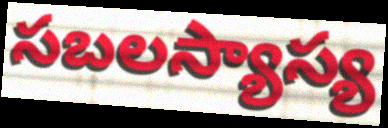
సబలస్యాస్య